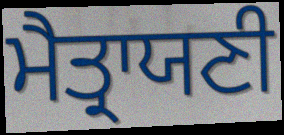
ਮੈਤ੍ਰਾਯਣੀ